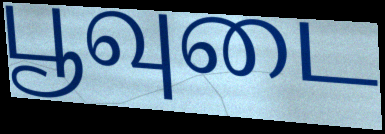
பூவுடை